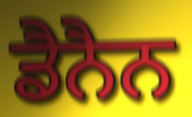
ਡੈਨੈਨ